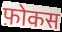
फ़ोकस